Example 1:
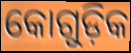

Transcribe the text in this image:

କୋଗୁଡ଼ିକ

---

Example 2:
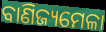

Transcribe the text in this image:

ବାଣିଜ୍ୟମେଳା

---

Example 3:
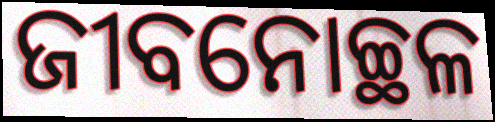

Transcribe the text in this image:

ଜୀବନୋଚ୍ଛଳ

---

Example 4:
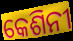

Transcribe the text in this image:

କେଶିନୀ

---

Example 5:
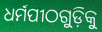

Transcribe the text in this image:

ଧର୍ମପୀଠଗୁଡ଼ିକୁ